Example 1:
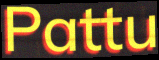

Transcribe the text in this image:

Pattu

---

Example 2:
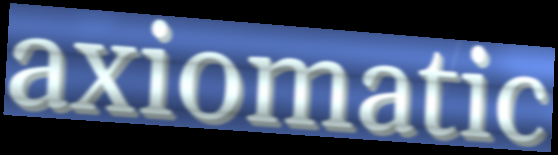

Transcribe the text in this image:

axiomatic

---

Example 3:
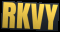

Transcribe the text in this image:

RKVY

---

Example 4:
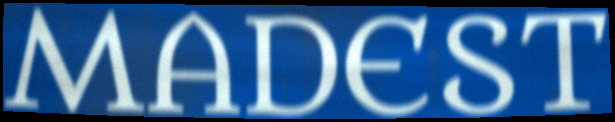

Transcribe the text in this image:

MADEST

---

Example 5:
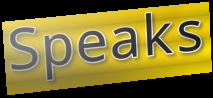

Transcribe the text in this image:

Speaks